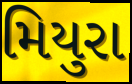
મિયુરા